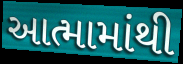
આત્મામાંથી